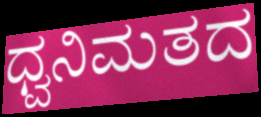
ಧ್ವನಿಮತದ